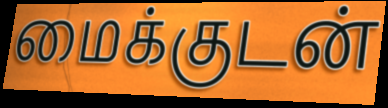
மைக்குடன்